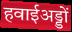
हवाईअड्डों